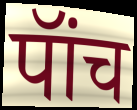
पॉंच